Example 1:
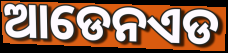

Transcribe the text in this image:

ଆଡେନଏଡ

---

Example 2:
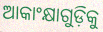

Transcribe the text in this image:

ଆକାଂକ୍ଷାଗୁଡ଼ିକୁ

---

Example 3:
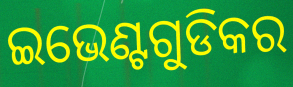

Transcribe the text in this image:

ଇଭେଣ୍ଟଗୁଡିକର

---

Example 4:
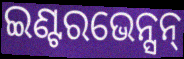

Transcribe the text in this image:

ଇଣ୍ଟରଭେନ୍ସନ୍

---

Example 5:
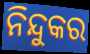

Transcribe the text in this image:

ନିନ୍ଦୁକର